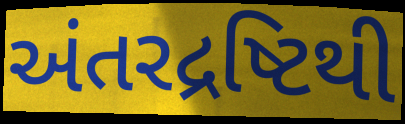
અંતરદ્રષ્ટિથી